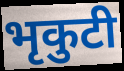
भृकुटी